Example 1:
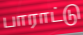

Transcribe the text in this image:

பாராட்டு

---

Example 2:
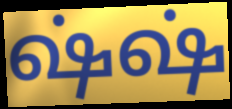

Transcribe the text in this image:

ஷ்ஷ்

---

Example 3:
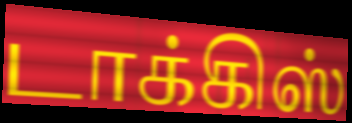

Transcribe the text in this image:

டாக்கிஸ்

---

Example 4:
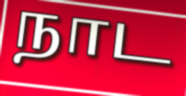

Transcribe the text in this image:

நாட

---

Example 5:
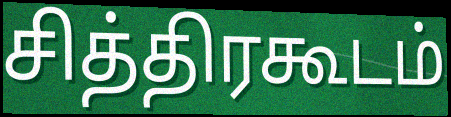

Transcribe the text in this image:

சித்திரகூடம்